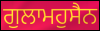
ਗੁਲਾਮਹੁਸੈਨ